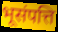
भूसंपत्ति